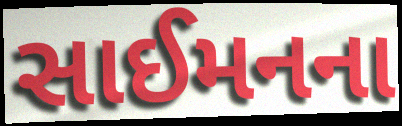
સાઈમનના